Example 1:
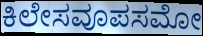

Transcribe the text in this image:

ಕಿಲೇಸವೂಪಸಮೋ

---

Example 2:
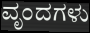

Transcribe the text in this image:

ವೃಂದಗಳು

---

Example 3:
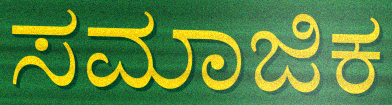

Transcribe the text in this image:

ಸಮಾಜಿಕ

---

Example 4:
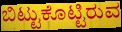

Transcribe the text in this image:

ಬಿಟ್ಟುಕೊಟ್ಟಿರುವ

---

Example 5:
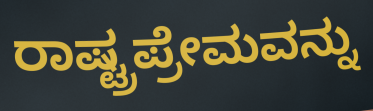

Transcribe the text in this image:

ರಾಷ್ಟ್ರಪ್ರೇಮವನ್ನು